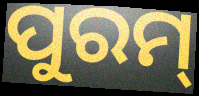
ପୁରମ୍